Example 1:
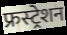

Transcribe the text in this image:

फ्रस्‍ट्रेशन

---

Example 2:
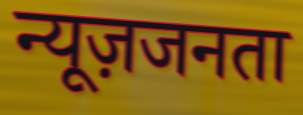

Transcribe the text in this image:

न्यूज़जनता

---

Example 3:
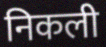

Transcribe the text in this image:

निकली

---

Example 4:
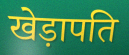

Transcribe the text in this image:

खेड़ापति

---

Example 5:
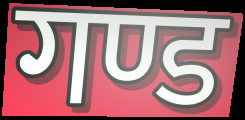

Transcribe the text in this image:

गण्ड